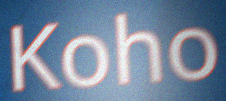
Koho